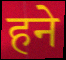
हने